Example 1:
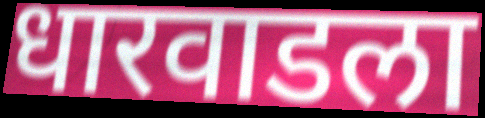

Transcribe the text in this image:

धारवाडला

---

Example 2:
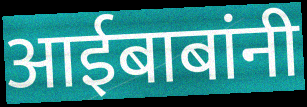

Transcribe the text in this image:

आईबाबांनी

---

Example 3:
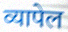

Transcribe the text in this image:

व्यापेल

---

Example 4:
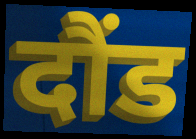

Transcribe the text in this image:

दौंड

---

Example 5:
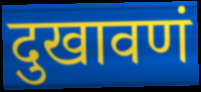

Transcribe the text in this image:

दुखावणं